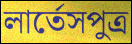
লার্তেসপুত্র